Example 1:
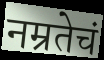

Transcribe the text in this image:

नम्रतेचं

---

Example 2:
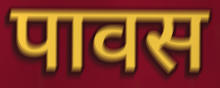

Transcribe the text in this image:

पावस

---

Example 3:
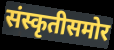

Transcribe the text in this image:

संस्कृतीसमोर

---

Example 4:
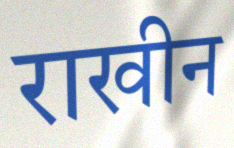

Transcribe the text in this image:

राखीन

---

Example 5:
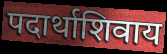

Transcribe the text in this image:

पदार्थाशिवाय